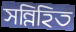
সন্নিহিত